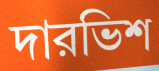
দারভিশ